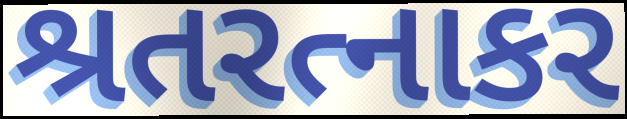
શ્રતરત્નાકર